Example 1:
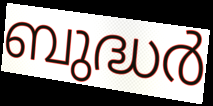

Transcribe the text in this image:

ബുദ്ധർ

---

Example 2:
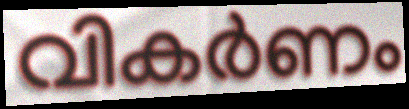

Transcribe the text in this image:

വികർണം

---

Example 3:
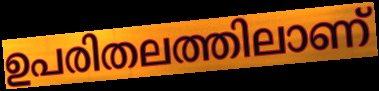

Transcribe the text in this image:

ഉപരിതലത്തിലാണ്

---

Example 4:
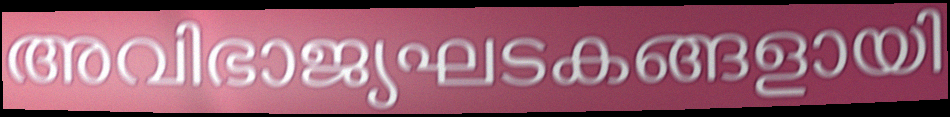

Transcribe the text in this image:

അവിഭാജ്യഘടകങ്ങളായി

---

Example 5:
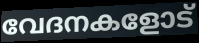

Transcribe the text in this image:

വേദനകളോട്